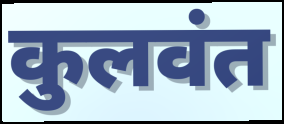
कुलवंत